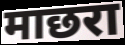
माछरा